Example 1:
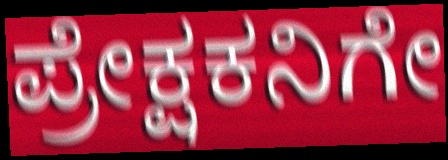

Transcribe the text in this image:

ಪ್ರೇಕ್ಷಕನಿಗೇ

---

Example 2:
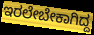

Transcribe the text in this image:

ಇರಲೇಬೇಕಾಗಿದ್ದ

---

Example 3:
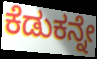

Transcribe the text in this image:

ಕೆಡುಕನ್ನೇ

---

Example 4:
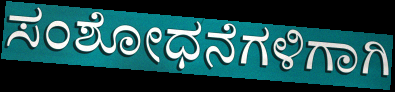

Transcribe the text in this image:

ಸಂಶೋಧನೆಗಳಿಗಾಗಿ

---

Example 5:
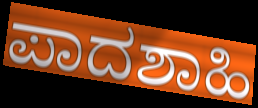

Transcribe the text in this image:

ಪಾದಶಾಹಿ